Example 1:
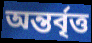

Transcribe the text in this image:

অন্তৰ্বৃত্ত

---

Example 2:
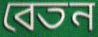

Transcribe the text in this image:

বেতন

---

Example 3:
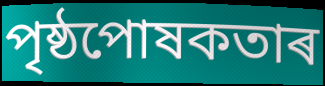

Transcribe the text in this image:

পৃষ্ঠপোষকতাৰ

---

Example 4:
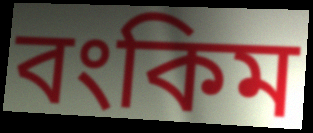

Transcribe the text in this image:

বংকিম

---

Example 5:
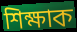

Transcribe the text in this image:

শিক্ষাক